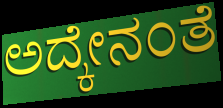
ಅದ್ಕೇನಂತೆ